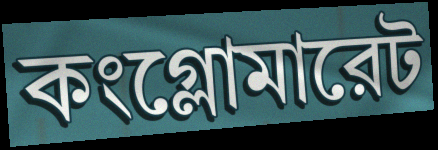
কংগ্লোমারেট